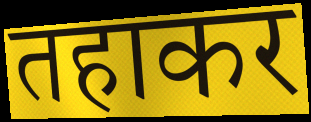
तहाकर